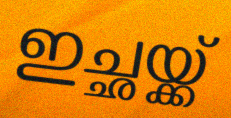
ഇച്ഛയ്ക്ക്